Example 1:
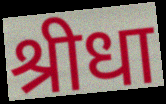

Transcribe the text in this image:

श्रीधा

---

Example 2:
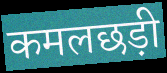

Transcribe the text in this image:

कमलछड़ी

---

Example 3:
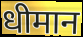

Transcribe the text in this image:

धीमान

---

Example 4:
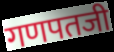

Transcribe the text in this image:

गणपतजी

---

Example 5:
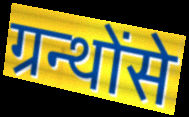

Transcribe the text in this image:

ग्रन्थोंसे